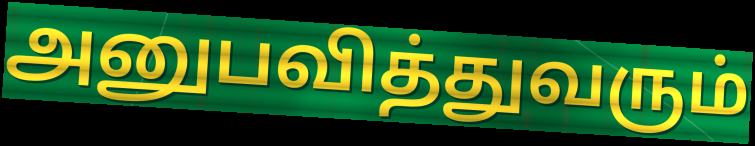
அனுபவித்துவரும்